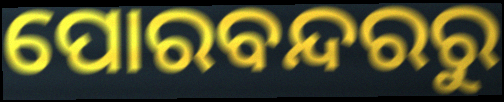
ପୋରବନ୍ଦରରୁ